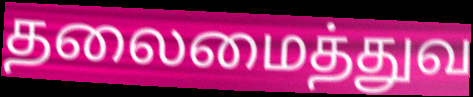
தலைமைத்துவ